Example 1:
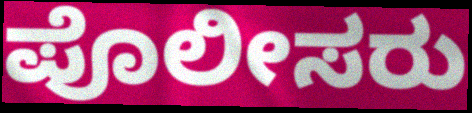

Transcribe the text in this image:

ಪೊಲೀಸರು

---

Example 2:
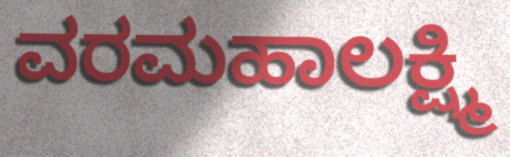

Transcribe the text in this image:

ವರಮಹಾಲಕ್ಷ್ಮಿ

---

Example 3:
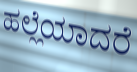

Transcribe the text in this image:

ಹಲ್ಲೆಯಾದರೆ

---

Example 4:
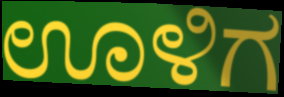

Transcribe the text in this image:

ಊಳಿಗ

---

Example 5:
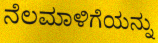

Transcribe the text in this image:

ನೆಲಮಾಳಿಗೆಯನ್ನು